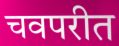
चवपरीत